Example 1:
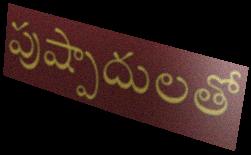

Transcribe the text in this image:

పుష్పాదులతో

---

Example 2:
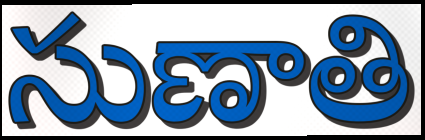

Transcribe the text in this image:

సుణాతి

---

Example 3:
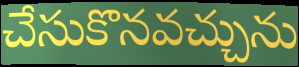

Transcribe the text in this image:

చేసుకొనవచ్చును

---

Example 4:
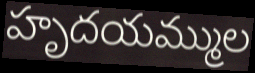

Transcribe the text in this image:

హృదయమ్ముల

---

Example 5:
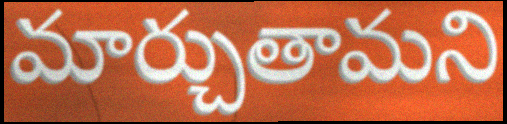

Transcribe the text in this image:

మార్చుతామని